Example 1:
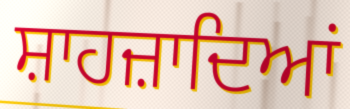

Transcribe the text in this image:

ਸ਼ਾਹਜ਼ਾਦਿਆਂ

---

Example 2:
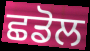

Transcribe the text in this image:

ਛਡੋਲ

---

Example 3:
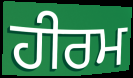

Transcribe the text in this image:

ਹੀਰਮ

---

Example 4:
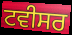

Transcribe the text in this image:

ਟਵੀਸਰ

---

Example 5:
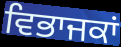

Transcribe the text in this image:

ਵਿਭਾਜਕਾਂ